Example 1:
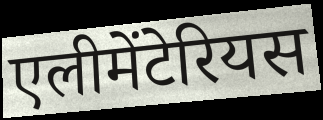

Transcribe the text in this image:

एलीमेंटेरियस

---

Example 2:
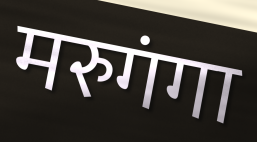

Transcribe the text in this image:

मरुगंगा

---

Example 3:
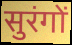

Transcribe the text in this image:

सुरंगों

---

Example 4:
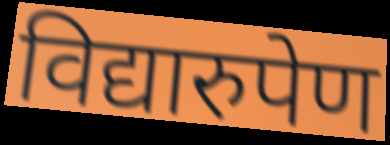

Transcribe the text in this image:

विद्यारुपेण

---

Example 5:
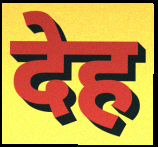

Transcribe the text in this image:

देह